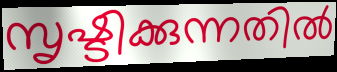
സൃഷ്ടിക്കുന്നതിൽ